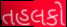
તહલકો